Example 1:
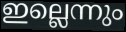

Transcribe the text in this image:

ഇല്ലെന്നും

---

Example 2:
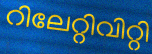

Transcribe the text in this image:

റിലേറ്റിവിറ്റി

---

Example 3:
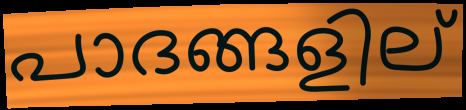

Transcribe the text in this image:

പാദങ്ങളില്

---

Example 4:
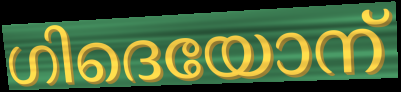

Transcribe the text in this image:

ഗിദെയോന്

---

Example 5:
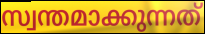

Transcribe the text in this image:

സ്വന്തമാക്കുന്നത്